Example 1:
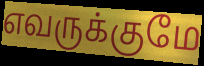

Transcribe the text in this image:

எவருக்குமே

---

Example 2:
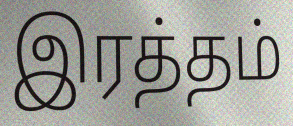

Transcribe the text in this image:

இரத்தம்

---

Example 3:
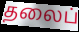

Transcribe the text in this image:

தலைப்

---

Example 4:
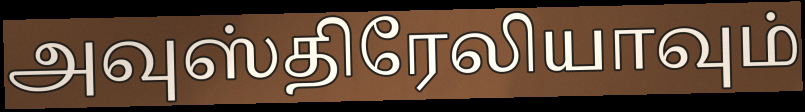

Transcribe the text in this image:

அவுஸ்திரேலியாவும்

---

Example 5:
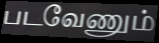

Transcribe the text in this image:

படவேணும்